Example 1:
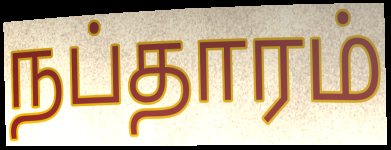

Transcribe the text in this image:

நப்தாரம்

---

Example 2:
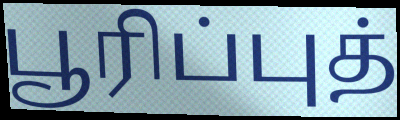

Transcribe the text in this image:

பூரிப்புத்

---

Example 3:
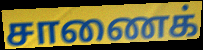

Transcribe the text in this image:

சாணைக்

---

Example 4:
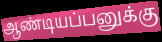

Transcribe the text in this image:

ஆண்டியப்பனுக்கு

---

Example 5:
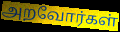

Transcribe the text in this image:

அறவோர்கள்